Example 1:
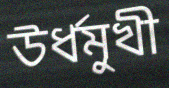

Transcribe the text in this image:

উর্ধমুখী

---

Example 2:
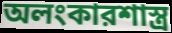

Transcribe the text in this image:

অলংকারশাস্ত্র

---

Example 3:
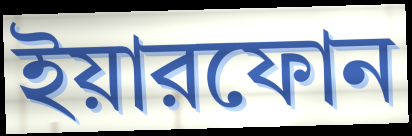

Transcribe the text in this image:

ইয়ারফোন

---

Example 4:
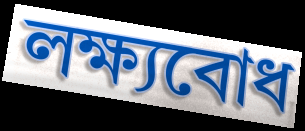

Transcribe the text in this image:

লক্ষ্যবোধ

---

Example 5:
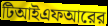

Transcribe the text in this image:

টিআইএফআরের